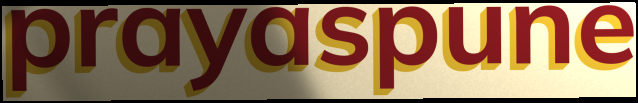
prayaspune